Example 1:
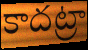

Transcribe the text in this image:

కాదట్రా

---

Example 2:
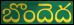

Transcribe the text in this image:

బొందెద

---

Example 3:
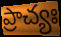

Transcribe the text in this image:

ప్రాచ్యః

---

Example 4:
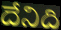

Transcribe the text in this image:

దేనిది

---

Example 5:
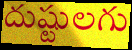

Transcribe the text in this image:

దుష్టులగు